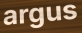
argus